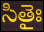
సితైః